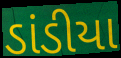
ડાંડીયા